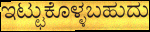
ಇಟ್ಟುಕೊಳ್ಳಬಹುದು